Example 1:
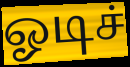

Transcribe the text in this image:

ஓடிச்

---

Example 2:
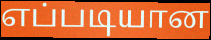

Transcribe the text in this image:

எப்படியான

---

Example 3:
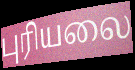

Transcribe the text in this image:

புரியலை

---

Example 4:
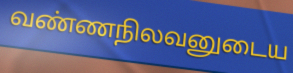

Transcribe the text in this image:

வண்ணநிலவனுடைய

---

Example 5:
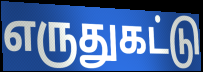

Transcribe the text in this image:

எருதுகட்டு